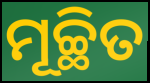
ମୂଚ୍ଛିତ